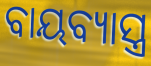
ବାୟବ୍ୟାସ୍ତ୍ର